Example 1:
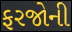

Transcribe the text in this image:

ફરજોની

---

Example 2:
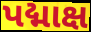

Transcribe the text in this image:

પદ્માક્ષ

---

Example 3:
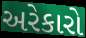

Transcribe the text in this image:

અરેકારો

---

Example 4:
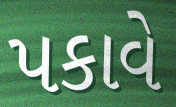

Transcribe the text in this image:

પકાવે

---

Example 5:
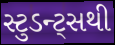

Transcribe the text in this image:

સ્ટુડન્ટ્સથી